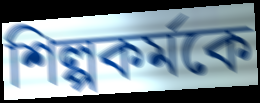
শিল্পকর্মকে